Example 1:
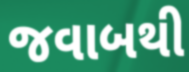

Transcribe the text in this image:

જવાબથી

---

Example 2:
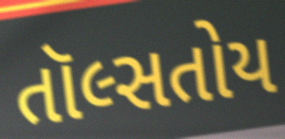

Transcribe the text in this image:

તૉલ્સતોય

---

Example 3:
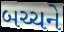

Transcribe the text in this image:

બચ્ચને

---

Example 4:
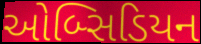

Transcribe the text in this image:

ઓબ્સિડિયન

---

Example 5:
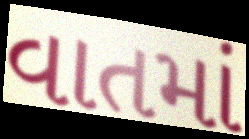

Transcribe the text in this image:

વાતમાં